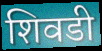
शिवडी